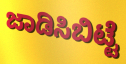
ಜಾಡಿಸಿಬಿಟ್ಟೆ